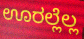
ಊರಲ್ಲೆಲ್ಲ